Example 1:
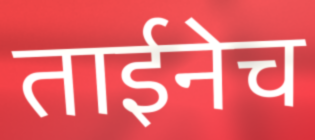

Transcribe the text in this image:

ताईनेच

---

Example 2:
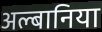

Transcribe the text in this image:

अल्बानिया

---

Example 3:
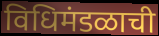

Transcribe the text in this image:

विधिमंडळाची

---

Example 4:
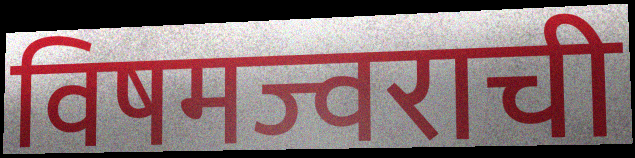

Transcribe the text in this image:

विषमज्वराची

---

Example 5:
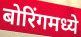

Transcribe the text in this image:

बोरिंगमध्ये